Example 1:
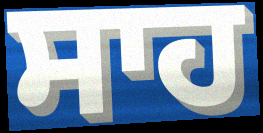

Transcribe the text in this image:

ਸਾਹ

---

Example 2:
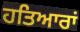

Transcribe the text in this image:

ਹਤਿਆਰਾਂ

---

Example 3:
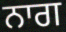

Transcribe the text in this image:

ਨਾਗ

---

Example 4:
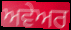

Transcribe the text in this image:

ਅਵੇਅਰ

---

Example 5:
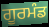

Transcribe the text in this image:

ਗੂਰਮੰਡ